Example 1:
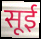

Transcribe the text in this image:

सूई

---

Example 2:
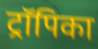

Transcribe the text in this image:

ट्रॉपिका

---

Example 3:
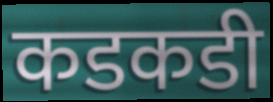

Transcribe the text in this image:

कडकडी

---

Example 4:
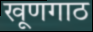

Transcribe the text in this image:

खूणगाठ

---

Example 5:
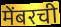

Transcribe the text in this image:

मेंबरची